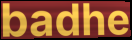
badhe